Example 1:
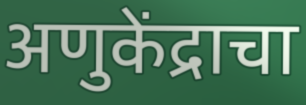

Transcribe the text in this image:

अणुकेंद्राचा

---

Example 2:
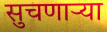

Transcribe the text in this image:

सुचणाऱ्या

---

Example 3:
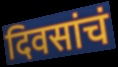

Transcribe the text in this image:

दिवसांचं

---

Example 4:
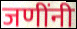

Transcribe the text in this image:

जणींनी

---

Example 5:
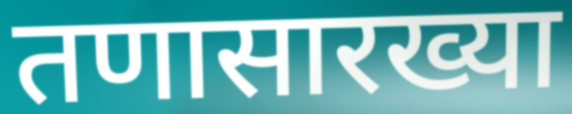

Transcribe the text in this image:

तणासारख्या